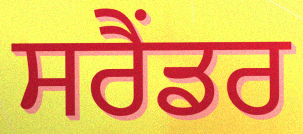
ਸਰੈਂਡਰ